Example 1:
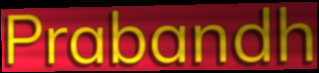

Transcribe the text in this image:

Prabandh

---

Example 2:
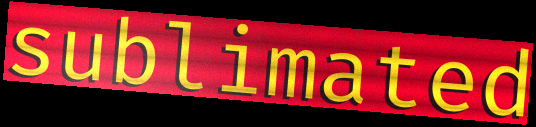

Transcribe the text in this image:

sublimated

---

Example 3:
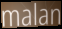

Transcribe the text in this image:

malan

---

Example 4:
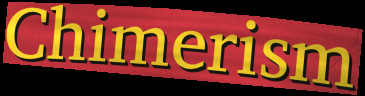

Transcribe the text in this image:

Chimerism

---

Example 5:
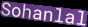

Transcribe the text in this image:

Sohanlal